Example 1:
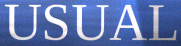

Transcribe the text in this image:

USUAL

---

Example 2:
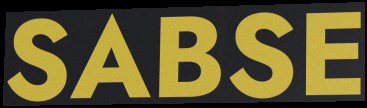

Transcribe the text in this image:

SABSE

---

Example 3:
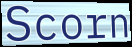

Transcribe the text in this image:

Scorn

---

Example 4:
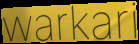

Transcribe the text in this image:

warkari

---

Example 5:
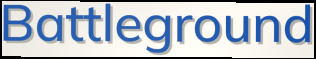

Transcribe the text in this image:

Battleground